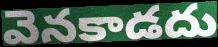
వెనకాడదు